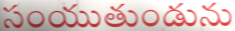
సంయుతుండును